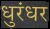
धुरंधर